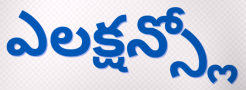
ఎలక్షన్స్లో